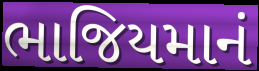
ભાજિયમાનં